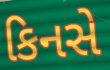
કિનસે